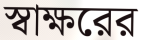
স্বাক্ষরের